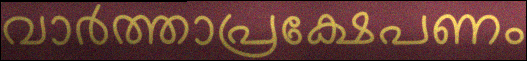
വാർത്താപ്രക്ഷേപണം